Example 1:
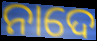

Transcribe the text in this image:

ନାଦେ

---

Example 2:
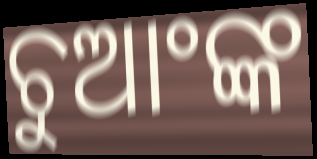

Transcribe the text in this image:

ଚୁଆଂଙ୍କ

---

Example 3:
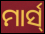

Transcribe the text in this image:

ମାର୍ସ୍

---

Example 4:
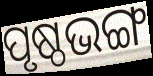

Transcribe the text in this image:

ପୃଷ୍ଠଭଙ୍ଗ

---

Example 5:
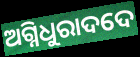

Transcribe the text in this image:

ଅଗ୍ନିଧୁରାଦଦେ